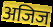
अजिज